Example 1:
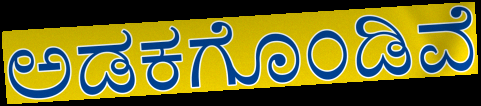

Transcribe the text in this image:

ಅಡಕಗೊಂಡಿವೆ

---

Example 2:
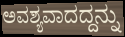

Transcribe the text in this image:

ಅವಶ್ಯವಾದದ್ದನ್ನು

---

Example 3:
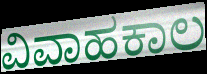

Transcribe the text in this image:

ವಿವಾಹಕಾಲ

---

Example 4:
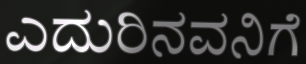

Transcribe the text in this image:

ಎದುರಿನವನಿಗೆ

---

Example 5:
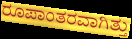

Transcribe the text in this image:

ರೂಪಾಂತರವಾಗಿತ್ತು